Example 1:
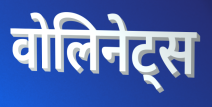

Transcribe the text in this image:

वोलिनेट्स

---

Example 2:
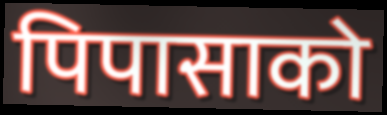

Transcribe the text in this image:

पिपासाको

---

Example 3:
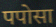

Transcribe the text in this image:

पपोसा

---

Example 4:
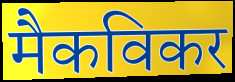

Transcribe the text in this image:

मैकविकर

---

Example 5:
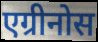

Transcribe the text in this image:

एग्रीनोस